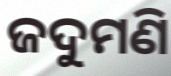
ଜଦୁମଣି